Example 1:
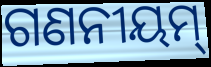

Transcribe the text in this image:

ଗଣନୀୟମ୍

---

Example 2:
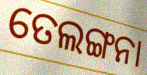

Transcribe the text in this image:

ତେଲଙ୍ଗନା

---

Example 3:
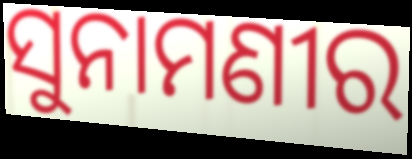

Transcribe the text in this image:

ସୁନାମଣୀର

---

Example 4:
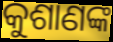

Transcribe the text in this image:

କୁଶାଣଙ୍କ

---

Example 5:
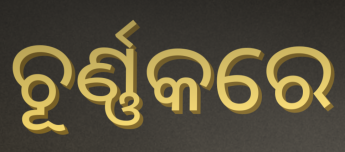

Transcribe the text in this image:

ଚୂର୍ଣ୍ଣକରେ